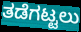
ತಡೆಗಟ್ಟಲು